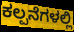
ಕಲ್ಪನೆಗಳಲ್ಲಿ